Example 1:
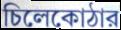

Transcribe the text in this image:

চিলেকোঠার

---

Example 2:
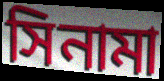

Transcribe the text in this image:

সিনামা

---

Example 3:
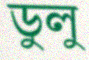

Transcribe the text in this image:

ডুলু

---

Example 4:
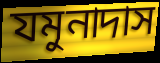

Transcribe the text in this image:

যমুনাদাস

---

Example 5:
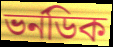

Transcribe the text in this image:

ভর্নডিক